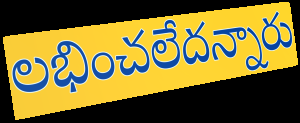
లభించలేదన్నారు